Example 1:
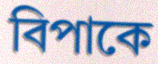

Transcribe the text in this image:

বিপাকে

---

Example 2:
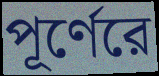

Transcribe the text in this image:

পূর্ণেরে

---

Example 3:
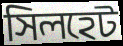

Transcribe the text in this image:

সিলহেট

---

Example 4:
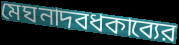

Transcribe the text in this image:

মেঘনাদবধকাব্যের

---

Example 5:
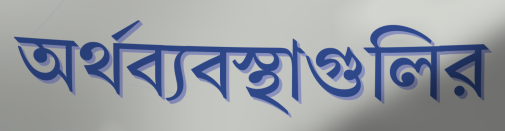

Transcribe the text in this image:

অর্থব্যবস্থাগুলির